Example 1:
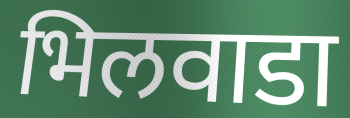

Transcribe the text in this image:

भिलवाडा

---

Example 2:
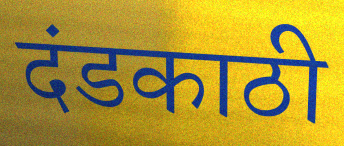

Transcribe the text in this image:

दंडकाठी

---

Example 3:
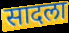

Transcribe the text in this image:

सादला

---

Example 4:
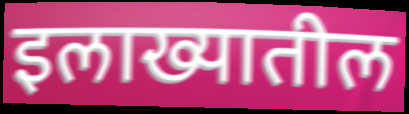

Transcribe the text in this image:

इलाख्यातील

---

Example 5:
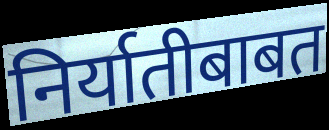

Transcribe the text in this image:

निर्यातीबाबत